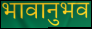
भावानुभव